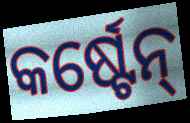
କର୍ଷ୍ଟେନ୍